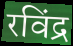
रविंद्र